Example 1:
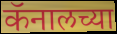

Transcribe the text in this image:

कॅनालच्या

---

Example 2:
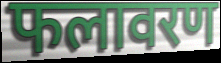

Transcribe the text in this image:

फलावरण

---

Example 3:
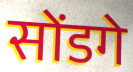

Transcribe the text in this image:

सोंडगे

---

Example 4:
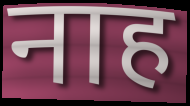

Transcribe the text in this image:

नाह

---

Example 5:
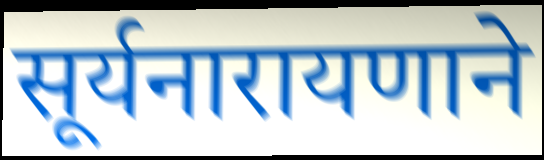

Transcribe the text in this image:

सूर्यनारायणाने